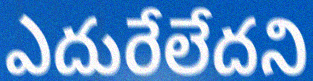
ఎదురేలేదని